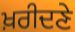
ਖ਼ਰੀਦਣੇ